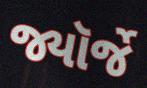
જ્યૉર્જે